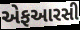
એફઆરસી